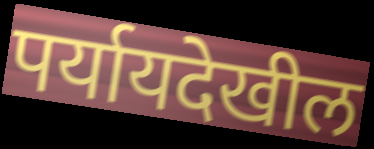
पर्यायदेखील